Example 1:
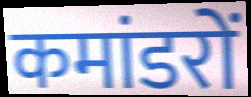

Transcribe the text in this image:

कमांडरों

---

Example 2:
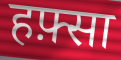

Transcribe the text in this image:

हफ़्सा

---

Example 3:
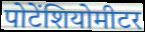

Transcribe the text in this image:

पोटेंशियोमीटर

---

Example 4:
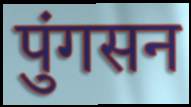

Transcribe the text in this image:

पुंगसन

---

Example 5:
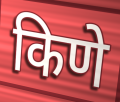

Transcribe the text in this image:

किणे